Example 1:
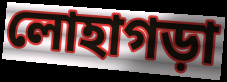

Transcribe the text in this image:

লোহাগড়া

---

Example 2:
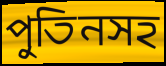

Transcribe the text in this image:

পুতিনসহ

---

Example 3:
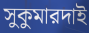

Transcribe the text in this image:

সুকুমারদাই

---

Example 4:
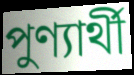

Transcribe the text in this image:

পুণ্যার্থী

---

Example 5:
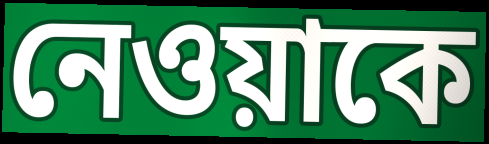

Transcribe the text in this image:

নেওয়াকে